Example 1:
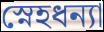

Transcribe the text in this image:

স্নেহধন্যা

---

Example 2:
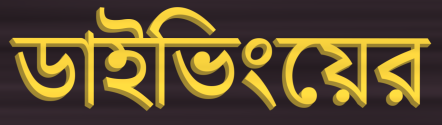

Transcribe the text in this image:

ডাইভিংয়ের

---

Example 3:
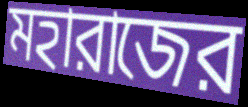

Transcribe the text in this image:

মহারাজের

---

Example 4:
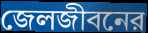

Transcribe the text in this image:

জেলজীবনের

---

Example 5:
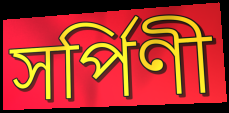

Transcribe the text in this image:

সর্পিণী